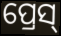
ପ୍ରେସ୍